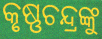
କୃଷ୍ଣଚନ୍ଦ୍ରଙ୍କୁ